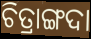
ଚିତ୍ରାଙ୍ଗଦା